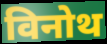
विनोथ